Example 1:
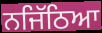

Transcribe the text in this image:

ਨਜਿੱਠਿਆ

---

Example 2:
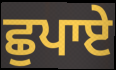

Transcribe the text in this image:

ਛੁਪਾਏ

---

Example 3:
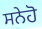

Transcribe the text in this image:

ਸਨੇਹੋ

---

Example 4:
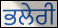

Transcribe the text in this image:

ਭਲੇਰੀ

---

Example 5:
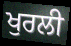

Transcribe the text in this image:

ਖੁਰਲੀ